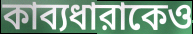
কাব্যধারাকেও